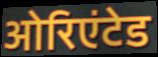
ओरिएंटेड